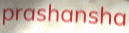
prashansha